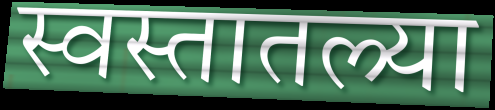
स्वस्तातल्या